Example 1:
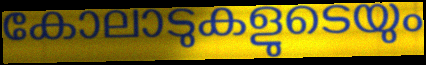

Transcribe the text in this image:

കോലാടുകളുടെയും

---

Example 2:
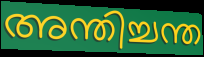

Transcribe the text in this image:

അന്തിച്ചന്ത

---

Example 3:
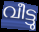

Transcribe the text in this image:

വീട്ടു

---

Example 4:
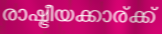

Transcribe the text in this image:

രാഷ്ട്രീയക്കാര്ക്ക്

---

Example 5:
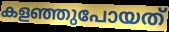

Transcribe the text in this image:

കളഞ്ഞുപോയത്